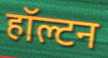
हॉल्टन